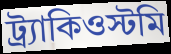
ট্র্যাকিওস্টমি